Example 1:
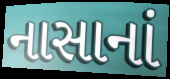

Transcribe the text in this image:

નાસાનાં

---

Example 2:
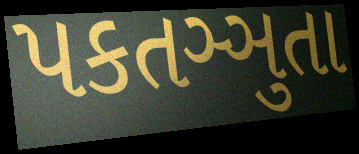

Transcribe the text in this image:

પકતઞ્ઞુતા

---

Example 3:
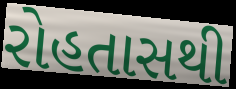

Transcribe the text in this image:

રોહતાસથી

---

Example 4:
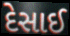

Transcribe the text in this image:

દેસાઈ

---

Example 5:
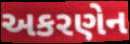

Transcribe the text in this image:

અકરણેન